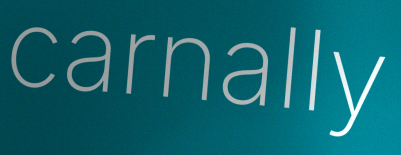
carnally